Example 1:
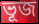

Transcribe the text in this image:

ভূজ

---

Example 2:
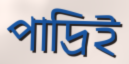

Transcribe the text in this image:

পাদ্রিই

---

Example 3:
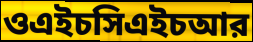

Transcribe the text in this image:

ওএইচসিএইচআর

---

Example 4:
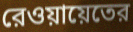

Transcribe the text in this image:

রেওয়ায়েতের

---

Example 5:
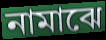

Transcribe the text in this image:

নামাঝে